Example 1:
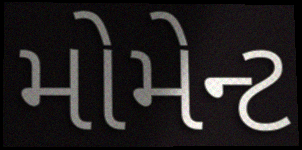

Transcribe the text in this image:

મોમેન્ટ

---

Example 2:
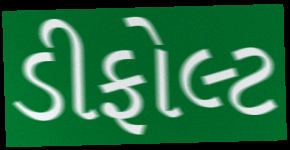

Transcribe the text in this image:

ડીફોલ્ટ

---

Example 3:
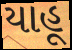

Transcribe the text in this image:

યાહૂ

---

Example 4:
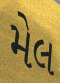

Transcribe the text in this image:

મેલ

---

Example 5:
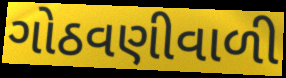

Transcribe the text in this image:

ગોઠવણીવાળી